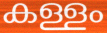
കള്ളം